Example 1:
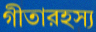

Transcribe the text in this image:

গীতারহস্য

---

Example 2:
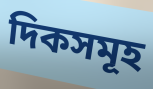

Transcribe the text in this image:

দিকসমূহ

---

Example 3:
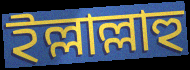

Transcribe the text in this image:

ইল্লাল্লাহু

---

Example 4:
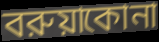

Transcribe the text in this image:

বরুয়াকোনা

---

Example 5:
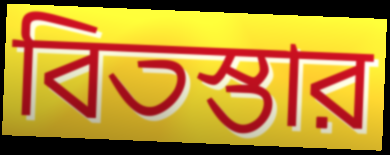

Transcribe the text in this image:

বিতস্তার